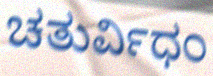
ಚತುರ್ವಿಧಂ